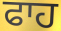
ਫਾਹ